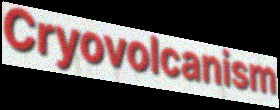
Cryovolcanism